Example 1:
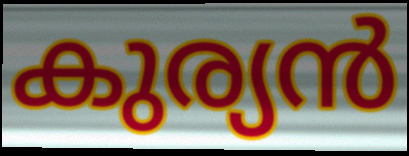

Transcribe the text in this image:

കുര്യൻ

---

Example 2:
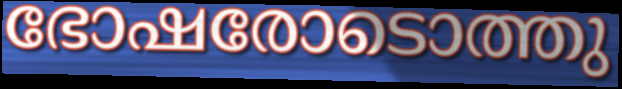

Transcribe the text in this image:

ഭോഷരോടൊത്തു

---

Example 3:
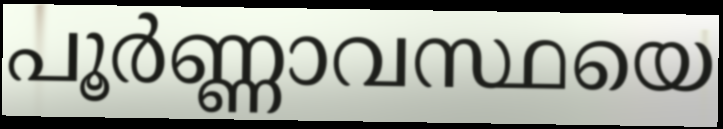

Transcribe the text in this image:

പൂർണ്ണാവസ്ഥയെ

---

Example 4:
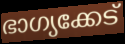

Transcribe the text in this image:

ഭാഗ്യക്കേട്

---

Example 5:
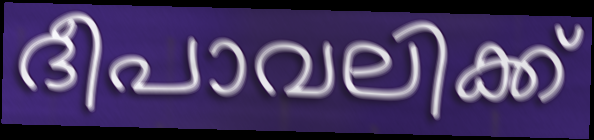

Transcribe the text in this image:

ദീപാവലിക്ക്